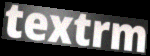
textrm